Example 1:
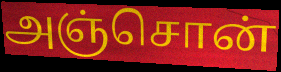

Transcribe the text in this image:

அஞ்சொன்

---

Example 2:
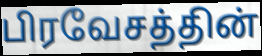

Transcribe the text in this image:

பிரவேசத்தின்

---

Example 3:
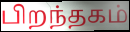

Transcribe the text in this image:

பிறந்தகம்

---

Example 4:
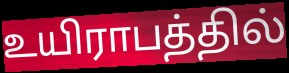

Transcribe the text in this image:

உயிராபத்தில்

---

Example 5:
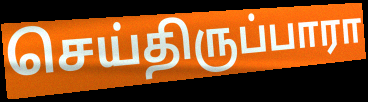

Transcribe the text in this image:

செய்திருப்பாரா